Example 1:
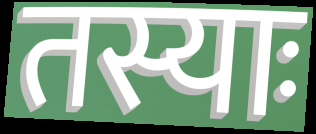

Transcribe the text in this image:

तस्याः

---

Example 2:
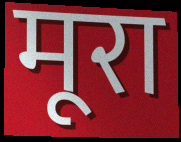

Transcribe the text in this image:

मूरा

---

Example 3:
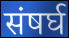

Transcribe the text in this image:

संषर्घ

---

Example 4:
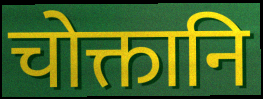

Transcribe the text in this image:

चोक्तानि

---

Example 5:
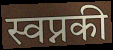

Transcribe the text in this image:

स्वप्नकी